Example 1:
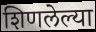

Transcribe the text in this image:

शिणलेल्या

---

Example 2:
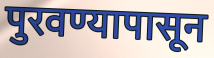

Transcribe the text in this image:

पुरवण्यापासून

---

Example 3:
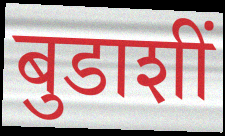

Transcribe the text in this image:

बुडाशीं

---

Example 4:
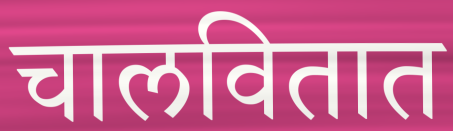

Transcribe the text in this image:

चालवितात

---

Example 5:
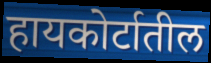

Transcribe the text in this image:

हायकोर्टातील